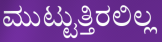
ಮುಟ್ಟುತ್ತಿರಲಿಲ್ಲ